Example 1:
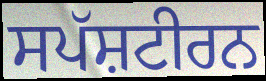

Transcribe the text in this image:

ਸਪੱਸ਼ਟੀਰਨ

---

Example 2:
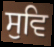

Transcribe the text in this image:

ਸੁਵਿ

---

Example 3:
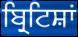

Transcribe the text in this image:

ਬ੍ਰਿਟਿਸ਼ਾਂ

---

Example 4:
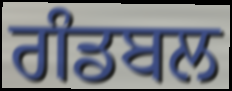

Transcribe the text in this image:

ਗੰਡਬਲ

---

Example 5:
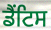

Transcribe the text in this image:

ਡੈਂਟਿਸ